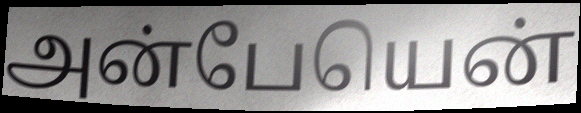
அன்பேயென்